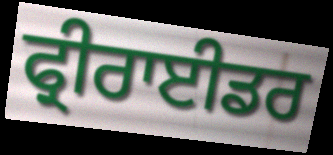
ਫ੍ਰੀਰਾਈਡਰ